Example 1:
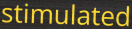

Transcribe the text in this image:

stimulated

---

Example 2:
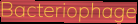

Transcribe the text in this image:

Bacteriophage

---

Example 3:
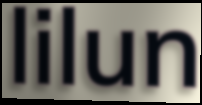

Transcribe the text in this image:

lilun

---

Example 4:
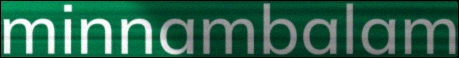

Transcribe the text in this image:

minnambalam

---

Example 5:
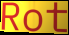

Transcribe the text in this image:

Rot